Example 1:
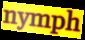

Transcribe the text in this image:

nymph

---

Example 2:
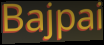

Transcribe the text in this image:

Bajpai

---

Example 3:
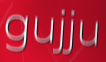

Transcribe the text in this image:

gujju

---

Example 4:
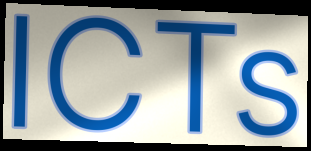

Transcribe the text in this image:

ICTs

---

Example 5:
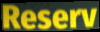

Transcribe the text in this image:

Reserv